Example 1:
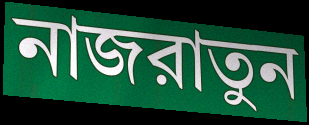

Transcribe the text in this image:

নাজরাতুন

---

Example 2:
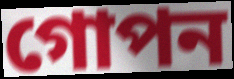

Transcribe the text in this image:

গোপন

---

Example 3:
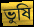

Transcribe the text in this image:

ভুষি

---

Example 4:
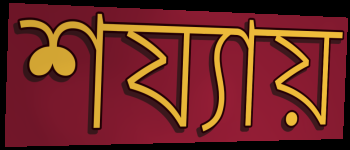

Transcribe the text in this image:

শয্যায়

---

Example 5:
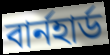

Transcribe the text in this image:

বার্নহার্ড